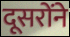
दूसरोंने